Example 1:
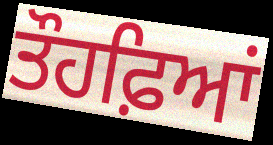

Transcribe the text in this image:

ਤੌਹਫ਼ਿਆਂ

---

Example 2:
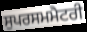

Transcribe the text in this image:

ਸੁਪਰਸਮਮੈਟਰੀ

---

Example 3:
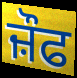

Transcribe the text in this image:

ਜ਼ੌਫ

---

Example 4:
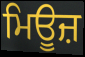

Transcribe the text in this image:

ਮਿਊਜ਼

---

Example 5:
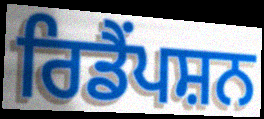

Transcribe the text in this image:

ਰਿਡੈਂਪਸ਼ਨ